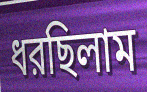
ধরছিলাম